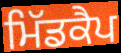
ਮਿੱਡਕੈਪ